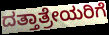
ದತ್ತಾತ್ರೇಯರಿಗೆ